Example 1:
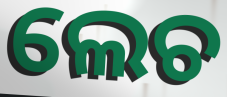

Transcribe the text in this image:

ଲେଚ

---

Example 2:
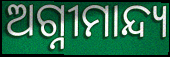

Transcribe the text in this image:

ଅଗ୍ନୀମାନ୍ଦ୍ୟ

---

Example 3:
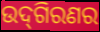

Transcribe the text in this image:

ଉଦ୍‌ଗିରଣର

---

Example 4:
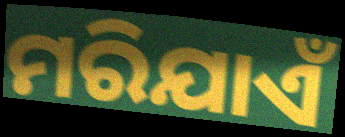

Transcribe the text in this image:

ମରିଯାଏଁ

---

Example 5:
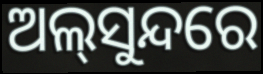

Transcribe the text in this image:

ଅଲ୍‌ସୁନ୍ଦରେ